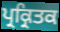
ਪ੍ਰਕ੍ਰਿਤਕ